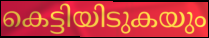
കെട്ടിയിടുകയും